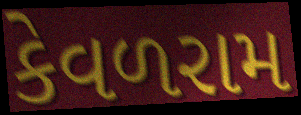
કેવળરામ